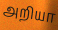
அறியா